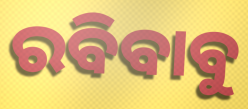
ରବିବାବୁ